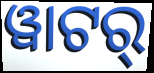
ୱାଟର୍